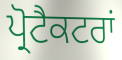
ਪ੍ਰੋਟੈਕਟਰਾਂ